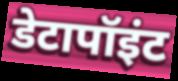
डेटापॉइंट